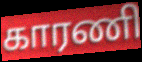
காரணி